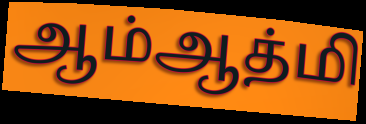
ஆம்ஆத்மி